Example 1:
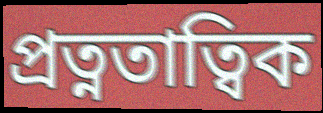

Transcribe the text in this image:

প্রত্নতাত্বিক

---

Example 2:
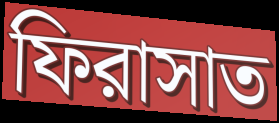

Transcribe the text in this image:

ফিরাসাত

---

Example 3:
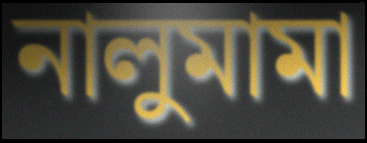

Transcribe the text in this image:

নালুমামা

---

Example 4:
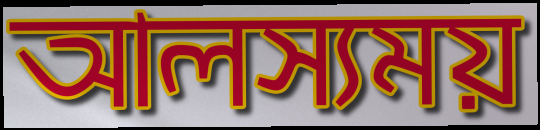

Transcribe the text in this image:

আলস্যময়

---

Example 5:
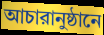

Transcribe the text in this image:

আচারানুষ্ঠানে